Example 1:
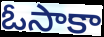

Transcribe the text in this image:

ఓసాకా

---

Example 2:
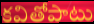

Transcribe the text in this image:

కవితోపాటు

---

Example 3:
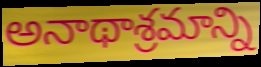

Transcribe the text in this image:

అనాథాశ్రమాన్ని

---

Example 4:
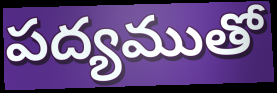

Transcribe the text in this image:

పద్యముతో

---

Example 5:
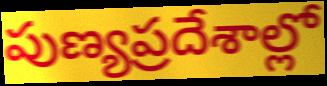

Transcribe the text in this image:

పుణ్యప్రదేశాల్లో